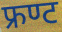
फ्रण्ट